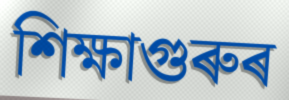
শিক্ষাগুৰুৰ